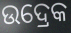
ଉଦ୍ରେକ